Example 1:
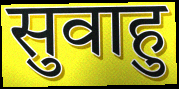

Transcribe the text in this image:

सुवाहु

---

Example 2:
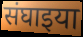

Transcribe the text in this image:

संघाइया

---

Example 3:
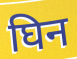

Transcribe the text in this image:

घिन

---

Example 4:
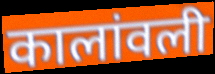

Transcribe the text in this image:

कालांवली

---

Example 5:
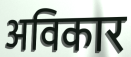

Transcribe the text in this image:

अविकार